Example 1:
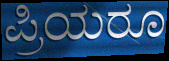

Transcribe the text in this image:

ಪ್ರಿಯರೂ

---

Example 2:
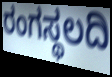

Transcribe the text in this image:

ರಂಗಸ್ಥಲದಿ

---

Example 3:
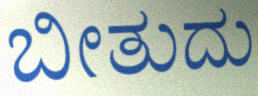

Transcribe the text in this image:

ಬೀತುದು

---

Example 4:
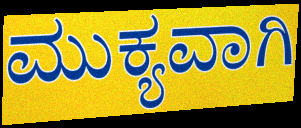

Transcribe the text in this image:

ಮುಕ್ಯವಾಗಿ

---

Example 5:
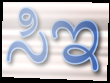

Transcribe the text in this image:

ಸಿಇ